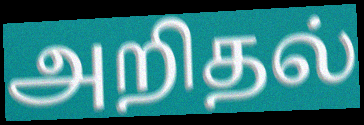
அறிதல்